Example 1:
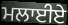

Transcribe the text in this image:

ਮਲਾਈਏ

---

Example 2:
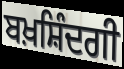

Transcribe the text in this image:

ਬਖ਼ਸ਼ਿੰਦਗੀ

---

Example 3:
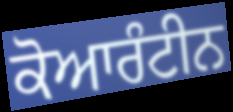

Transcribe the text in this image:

ਕੋਆਰੰਟੀਨ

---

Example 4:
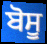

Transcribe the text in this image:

ਬੋਸੂ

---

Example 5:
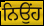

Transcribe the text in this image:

ਨਿਉਂਹ